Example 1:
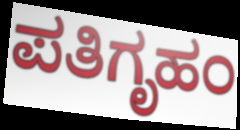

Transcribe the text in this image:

ಪತಿಗೃಹಂ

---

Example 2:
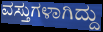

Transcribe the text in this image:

ವಸ್ತುಗಳಾಗಿದ್ದು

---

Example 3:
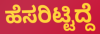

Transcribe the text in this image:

ಹೆಸರಿಟ್ಟಿದ್ದೆ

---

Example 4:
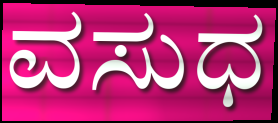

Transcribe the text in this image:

ವಸುಧ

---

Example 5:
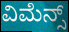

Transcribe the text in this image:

ವಿಮೆನ್ಸ್